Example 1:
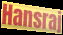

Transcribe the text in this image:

Hansraj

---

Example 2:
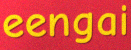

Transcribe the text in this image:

eengai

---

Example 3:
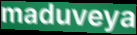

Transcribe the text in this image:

maduveya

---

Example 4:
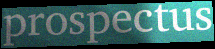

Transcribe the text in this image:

prospectus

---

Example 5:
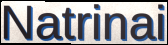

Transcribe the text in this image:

Natrinai